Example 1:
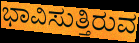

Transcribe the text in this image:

ಭಾವಿಸುತ್ತಿರುವ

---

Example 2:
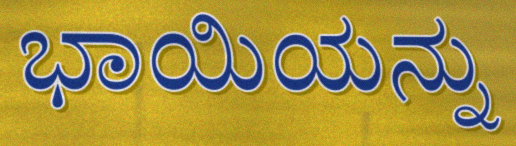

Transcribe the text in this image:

ಭಾಯಿಯನ್ನು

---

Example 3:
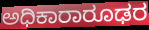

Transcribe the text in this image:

ಅಧಿಕಾರಾರೂಢರ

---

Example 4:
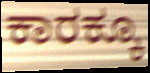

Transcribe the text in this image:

ಕಾರಕ್ಕೂ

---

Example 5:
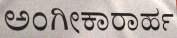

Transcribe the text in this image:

ಅಂಗೀಕಾರಾರ್ಹ